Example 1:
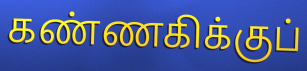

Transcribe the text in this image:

கண்ணகிக்குப்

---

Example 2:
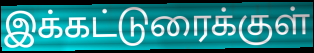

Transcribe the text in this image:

இக்கட்டுரைக்குள்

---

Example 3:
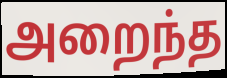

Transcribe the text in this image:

அறைந்த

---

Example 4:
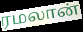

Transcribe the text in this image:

ரமலான்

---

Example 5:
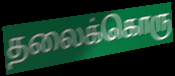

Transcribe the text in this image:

தலைக்கொரு